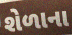
શેળાના